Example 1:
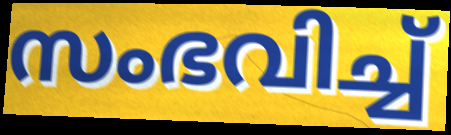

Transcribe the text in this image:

സംഭവിച്ച്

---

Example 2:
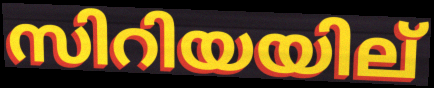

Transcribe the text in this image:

സിറിയയില്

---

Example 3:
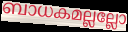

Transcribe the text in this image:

ബാധകമല്ലല്ലോ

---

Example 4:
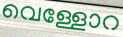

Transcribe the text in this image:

വെള്ളോറ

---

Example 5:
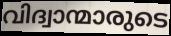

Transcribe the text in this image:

വിദ്വാന്മാരുടെ